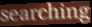
searching